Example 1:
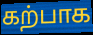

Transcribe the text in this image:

கற்பாக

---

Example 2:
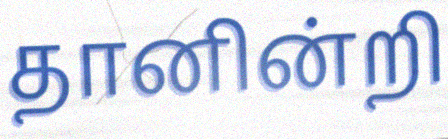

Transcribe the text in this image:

தானின்றி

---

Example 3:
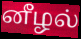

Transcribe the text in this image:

னீழல்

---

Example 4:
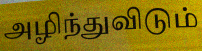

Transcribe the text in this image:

அழிந்துவிடும்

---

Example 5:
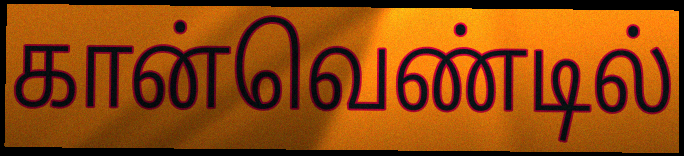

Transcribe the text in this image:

கான்வெண்டில்